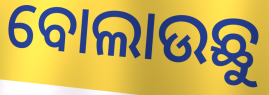
ବୋଲାଉଛୁ